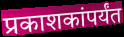
प्रकाशकांपर्यंत